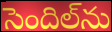
సెందిల్‌ను